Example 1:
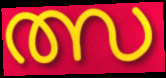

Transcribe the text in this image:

ത്സ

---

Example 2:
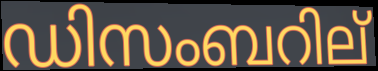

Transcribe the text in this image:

ഡിസംബറില്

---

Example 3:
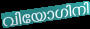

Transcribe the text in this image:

വിയോഗിനി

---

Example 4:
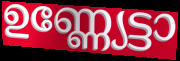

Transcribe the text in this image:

ഉണ്ണ്യേട്ടാ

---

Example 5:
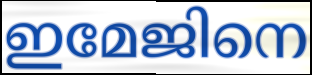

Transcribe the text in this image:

ഇമേജിനെ